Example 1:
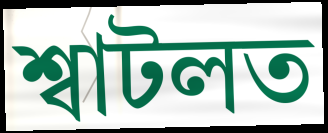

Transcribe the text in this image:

শ্বাটলত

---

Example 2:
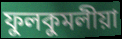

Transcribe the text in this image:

ফুলকুমলীয়া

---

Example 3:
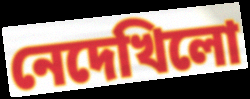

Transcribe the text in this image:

নেদেখিলো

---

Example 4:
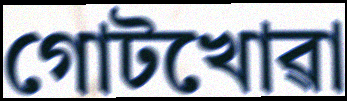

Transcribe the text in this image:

গোটখোৱা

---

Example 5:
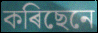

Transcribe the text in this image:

কৰিছেনে